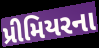
પ્રીમિયરના